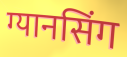
ग्यानसिंग